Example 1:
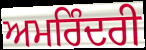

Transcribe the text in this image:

ਅਮਰਿੰਦਰੀ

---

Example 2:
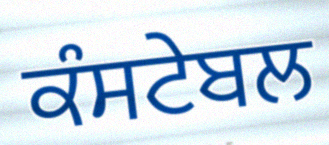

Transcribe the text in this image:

ਕੰਸਟੇਬਲ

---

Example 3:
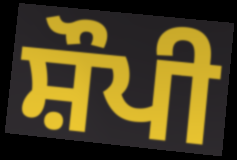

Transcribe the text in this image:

ਸ਼ੌਪੀ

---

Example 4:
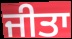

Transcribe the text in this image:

ਜੀਤਾ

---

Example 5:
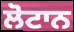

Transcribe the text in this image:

ਲੋਟਾਨ